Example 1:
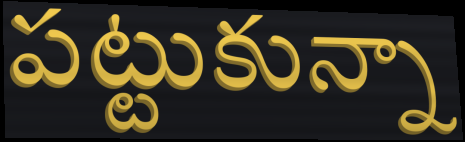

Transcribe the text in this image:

పట్టుకున్నా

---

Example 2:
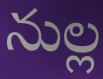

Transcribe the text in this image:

నుల్ల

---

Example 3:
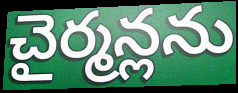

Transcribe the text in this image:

చైర్మన్లను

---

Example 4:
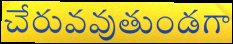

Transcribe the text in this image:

చేరువవుతుండగా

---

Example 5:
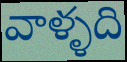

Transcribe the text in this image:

వాళ్ళది